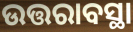
ଉତ୍ତରାବସ୍ଥା